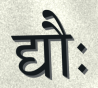
द्यौः